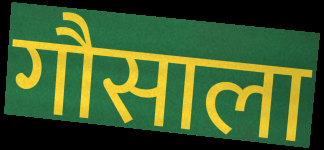
गौसाला